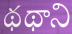
థథాని